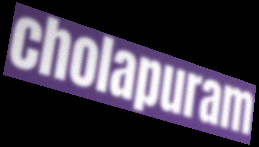
cholapuram